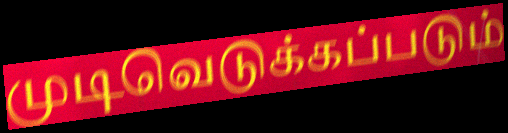
முடிவெடுக்கப்படும்